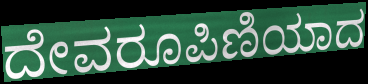
ದೇವರೂಪಿಣಿಯಾದ